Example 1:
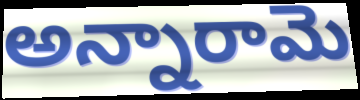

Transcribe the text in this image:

అన్నారామె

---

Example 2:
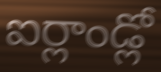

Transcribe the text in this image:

ఐర్లాండ్లో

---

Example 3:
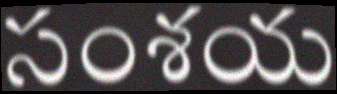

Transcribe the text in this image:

సంశయ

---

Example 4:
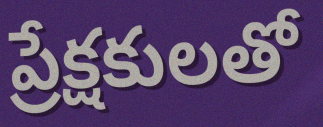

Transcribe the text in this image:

ప్రేక్షకులతో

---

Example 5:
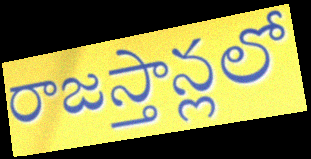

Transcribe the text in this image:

రాజస్తాన్లలో